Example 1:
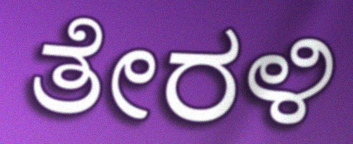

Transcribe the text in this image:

ತೇರಳಿ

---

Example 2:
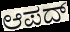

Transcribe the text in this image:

ಆಪದ್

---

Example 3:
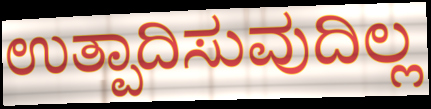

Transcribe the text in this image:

ಉತ್ಪಾದಿಸುವುದಿಲ್ಲ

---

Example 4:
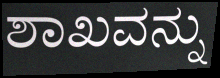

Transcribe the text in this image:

ಶಾಖವನ್ನು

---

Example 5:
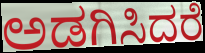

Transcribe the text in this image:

ಅಡಗಿಸಿದರೆ